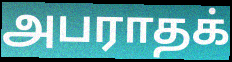
அபராதக்